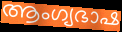
ആംഗ്യഭാഷ